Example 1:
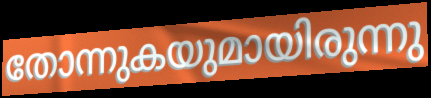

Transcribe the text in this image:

തോന്നുകയുമായിരുന്നു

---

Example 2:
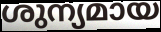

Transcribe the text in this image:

ശുന്യമായ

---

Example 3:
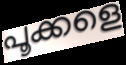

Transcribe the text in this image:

പൂക്കളെ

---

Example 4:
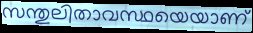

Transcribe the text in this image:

സന്തുലിതാവസ്ഥയെയാണ്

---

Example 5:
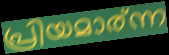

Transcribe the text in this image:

പ്രിയമാര്ന്ന